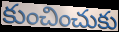
కుంచించుకు